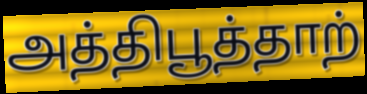
அத்திபூத்தாற்